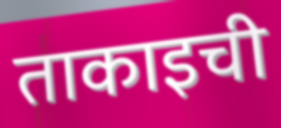
ताकाइची